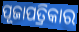
ପୂଜାପତ୍ରିକାର